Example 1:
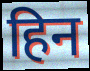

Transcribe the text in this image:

हिन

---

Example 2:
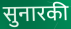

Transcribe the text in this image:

सुनारकी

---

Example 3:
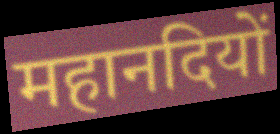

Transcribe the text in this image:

महानदियों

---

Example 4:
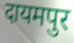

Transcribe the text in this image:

दायमपुर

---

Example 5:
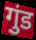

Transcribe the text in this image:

गुंड